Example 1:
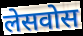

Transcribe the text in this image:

लेसवोस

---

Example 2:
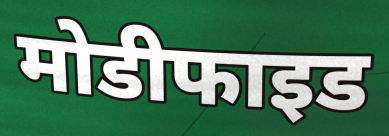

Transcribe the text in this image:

मोडीफाइड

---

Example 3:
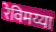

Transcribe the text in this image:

रेविमय्या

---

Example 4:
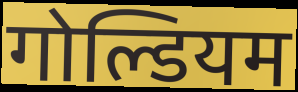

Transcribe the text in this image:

गोल्डियम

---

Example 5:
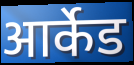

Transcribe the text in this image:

आर्केड